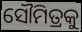
ସୌମିତ୍ରକୁ